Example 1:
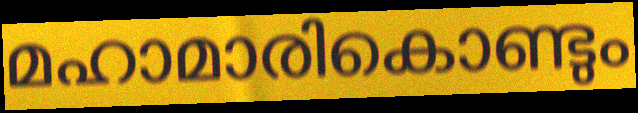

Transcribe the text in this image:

മഹാമാരികൊണ്ടും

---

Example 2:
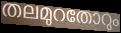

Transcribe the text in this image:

തലമുറതോറും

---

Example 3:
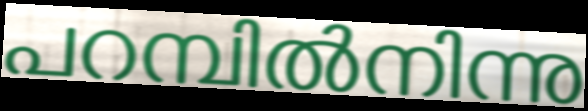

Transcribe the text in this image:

പറമ്പിൽനിന്നു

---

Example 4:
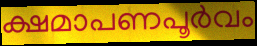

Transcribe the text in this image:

ക്ഷമാപണപൂർവം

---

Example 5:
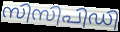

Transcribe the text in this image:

സിസിപിഡി